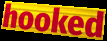
hooked